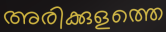
അരിക്കുളത്തെ